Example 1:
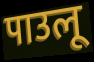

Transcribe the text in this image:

पाउलू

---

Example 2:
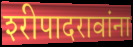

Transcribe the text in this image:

श्रीपादरावांना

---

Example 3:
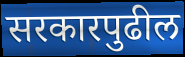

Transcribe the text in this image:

सरकारपुढील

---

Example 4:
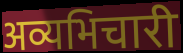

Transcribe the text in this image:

अव्यभिचारी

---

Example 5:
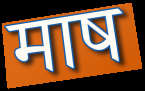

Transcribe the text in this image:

माष